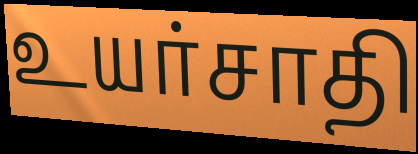
உயர்சாதி